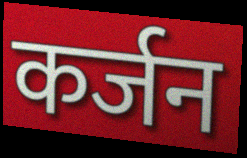
कर्जन